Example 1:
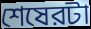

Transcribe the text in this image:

শেষেরটা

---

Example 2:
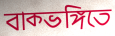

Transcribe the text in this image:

বাক্ভঙ্গিতে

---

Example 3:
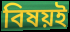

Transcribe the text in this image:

বিষয়ই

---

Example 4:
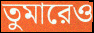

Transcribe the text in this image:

তুমারেও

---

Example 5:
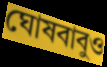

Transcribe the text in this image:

ঘোষবাবুও